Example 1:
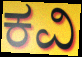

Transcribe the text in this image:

ಕವಿ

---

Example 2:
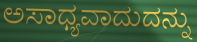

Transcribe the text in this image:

ಅಸಾಧ್ಯವಾದುದನ್ನು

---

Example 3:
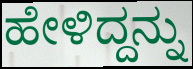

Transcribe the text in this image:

ಹೇಳಿದ್ದನ್ನು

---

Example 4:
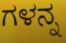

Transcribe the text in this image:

ಗಳನ್ನ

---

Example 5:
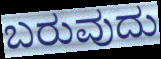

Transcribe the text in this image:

ಬರುವುದು